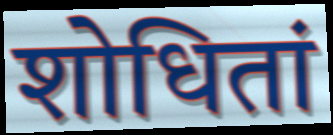
शोधितां